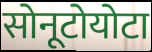
सोनूटोयोटा